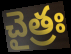
చైత్రః